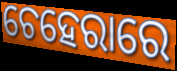
ଚେହେରାରେ